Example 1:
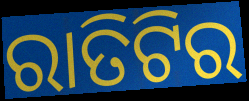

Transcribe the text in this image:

ରାତିଟିର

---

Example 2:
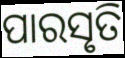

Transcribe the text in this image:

ପାରସୃତି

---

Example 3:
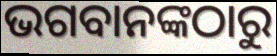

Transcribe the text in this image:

ଭଗବାନଙ୍କଠାରୁ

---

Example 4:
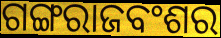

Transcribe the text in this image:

ଗଙ୍ଗରାଜବଂଶର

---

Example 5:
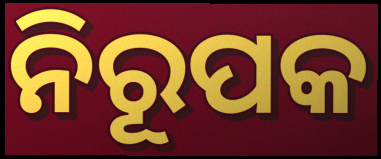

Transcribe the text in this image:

ନିରୂପକ